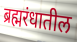
ब्रह्मरंधातील